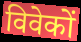
विवेकों